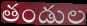
తండుల